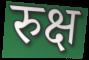
रुक्ष